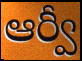
ఆర్వీ